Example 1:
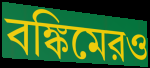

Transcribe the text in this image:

বঙ্কিমেরও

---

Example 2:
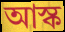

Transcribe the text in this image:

আস্ক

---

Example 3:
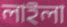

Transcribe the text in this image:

লাইলা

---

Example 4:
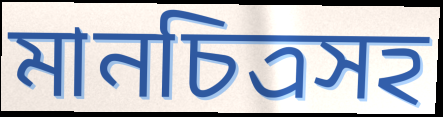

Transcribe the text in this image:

মানচিত্রসহ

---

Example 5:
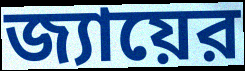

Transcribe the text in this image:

জ্যায়ের